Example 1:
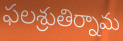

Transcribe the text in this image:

ఫలశ్రుతిర్నామ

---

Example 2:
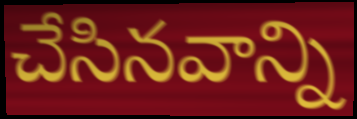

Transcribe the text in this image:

చేసినవాన్ని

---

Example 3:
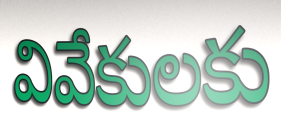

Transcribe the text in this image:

వివేకులకు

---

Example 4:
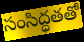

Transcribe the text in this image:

సంసిద్ధతతో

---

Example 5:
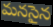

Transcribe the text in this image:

మనసైన